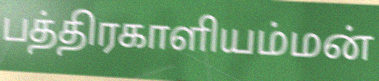
பத்திரகாளியம்மன்